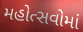
મહોત્સવોમાં